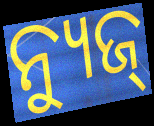
ନ୍ୟୁଜ୍